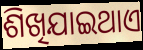
ଶିଖିଯାଇଥାଏ